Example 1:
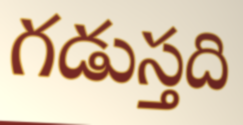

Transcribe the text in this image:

గడుస్తది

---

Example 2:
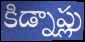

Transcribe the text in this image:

కిడ్నాప్లు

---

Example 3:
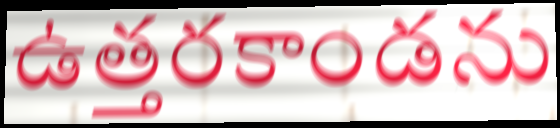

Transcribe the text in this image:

ఉత్తరకాండను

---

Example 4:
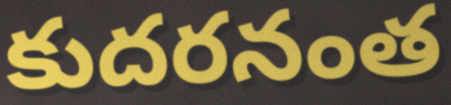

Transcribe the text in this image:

కుదరనంత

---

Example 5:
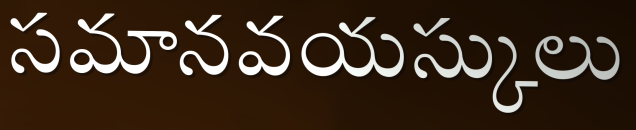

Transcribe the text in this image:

సమానవయస్కులు